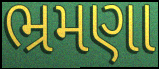
ભ્રમણા